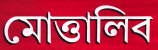
মোত্তালিব